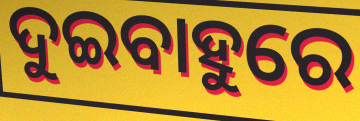
ଦୁଇବାହୁରେ